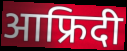
आफ्रिदी